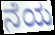
ನೆಯ